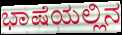
ಭಾಷೆಯಲ್ಲಿನ